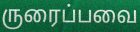
ருரைப்பவை